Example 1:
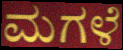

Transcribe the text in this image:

ಮಗಳೆ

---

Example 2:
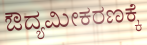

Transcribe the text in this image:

ಔದ್ಯಮೀಕರಣಕ್ಕೆ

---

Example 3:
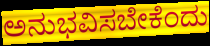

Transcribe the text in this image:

ಅನುಭವಿಸಬೇಕೆಂದು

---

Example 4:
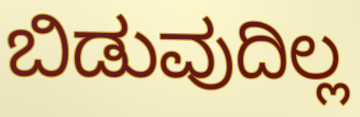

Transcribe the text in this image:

ಬಿಡುವುದಿಲ್ಲ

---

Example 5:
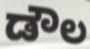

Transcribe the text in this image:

ಡೌಲ